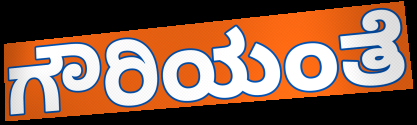
ಗೌರಿಯಂತೆ